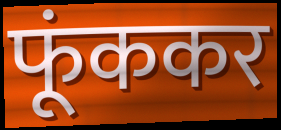
फूंककर